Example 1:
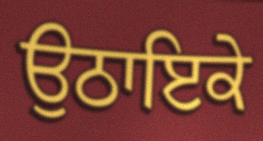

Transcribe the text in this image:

ਉਠਾਇਕੇ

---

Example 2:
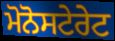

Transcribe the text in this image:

ਮੋਨੋਸਟੇਰੇਟ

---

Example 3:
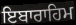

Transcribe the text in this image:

ਇਬਾਰਾਹਿਮ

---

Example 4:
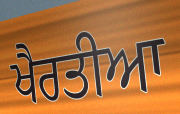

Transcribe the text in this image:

ਖੈਰਤੀਆ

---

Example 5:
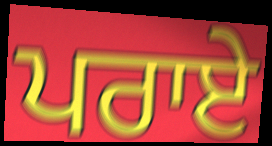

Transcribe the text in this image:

ਪਰਾਏ